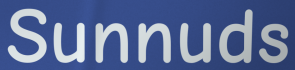
Sunnuds